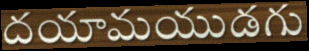
దయామయుడగు